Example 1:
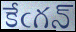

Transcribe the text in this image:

కేఁగన్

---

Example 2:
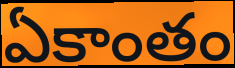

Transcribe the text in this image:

ఏకాంతం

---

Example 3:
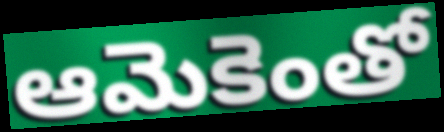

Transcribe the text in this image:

ఆమెకెంతో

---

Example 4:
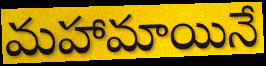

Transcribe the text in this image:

మహామాయినే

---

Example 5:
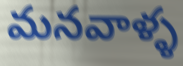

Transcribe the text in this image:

మనవాళ్ళ